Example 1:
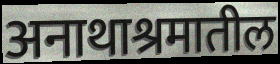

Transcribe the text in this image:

अनाथाश्रमातील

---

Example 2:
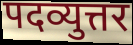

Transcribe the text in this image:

पदव्युत्तर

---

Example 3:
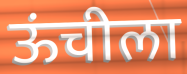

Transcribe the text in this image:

ऊंचीला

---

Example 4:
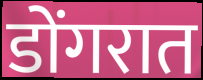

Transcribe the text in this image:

डोंगरात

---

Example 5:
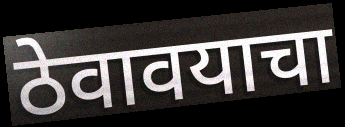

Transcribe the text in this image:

ठेवावयाचा